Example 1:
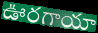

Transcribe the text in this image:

ఊరగాయా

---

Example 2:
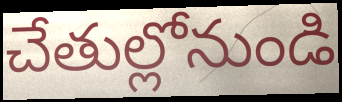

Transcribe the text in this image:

చేతుల్లోనుండి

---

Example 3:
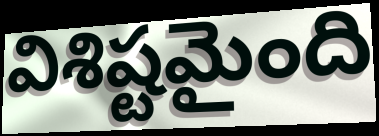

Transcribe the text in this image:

విశిష్టమైంది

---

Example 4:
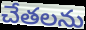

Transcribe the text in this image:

చేతలను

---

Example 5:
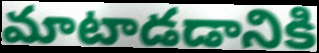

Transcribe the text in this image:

మాటాడడానికి